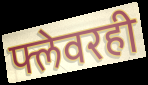
फ्लेवरही